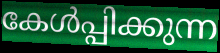
കേൾപ്പിക്കുന്ന